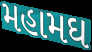
મહામઘ